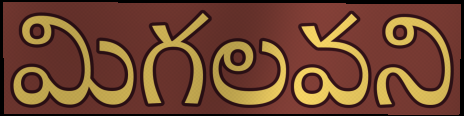
మిగలవని